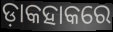
ଡ଼ାକହାକରେ